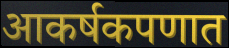
आकर्षकपणात